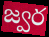
జ్వర